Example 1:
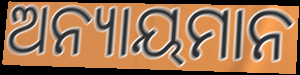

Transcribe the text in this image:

ଅନ୍ୟାୟମାନ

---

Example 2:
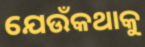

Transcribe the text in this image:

ଯେଉଁକଥାକୁ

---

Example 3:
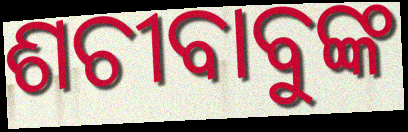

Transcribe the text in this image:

ଶଚୀବାବୁଙ୍କ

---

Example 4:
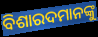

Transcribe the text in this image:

ବିଶାରଦମାନଙ୍କୁ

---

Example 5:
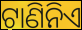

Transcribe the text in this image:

ଟାଣିନିଏ